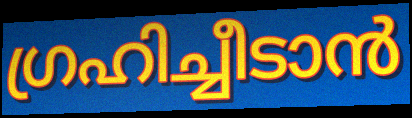
ഗ്രഹിച്ചീടാൻ